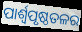
ପାର୍ଶ୍ଵପୃଷ୍ଠତଳର